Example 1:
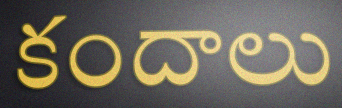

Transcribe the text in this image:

కందాలు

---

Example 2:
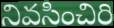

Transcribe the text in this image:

నివసించిరి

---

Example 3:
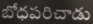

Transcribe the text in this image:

బోధపరిచాడు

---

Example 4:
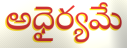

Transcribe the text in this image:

అధైర్యమే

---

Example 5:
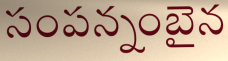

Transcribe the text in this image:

సంపన్నంబైన